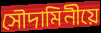
সৌদামিনীয়ে